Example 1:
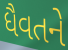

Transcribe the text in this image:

ધૈવતને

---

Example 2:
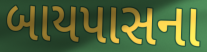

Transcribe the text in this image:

બાયપાસના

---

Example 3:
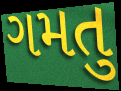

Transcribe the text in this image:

ગમતુ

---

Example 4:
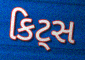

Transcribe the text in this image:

કિટ્સ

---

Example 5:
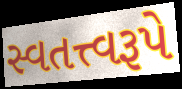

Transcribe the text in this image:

સ્વતત્ત્વરૂપે